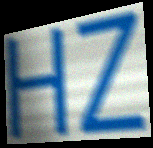
HZ